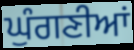
ਘੁੰਗਣੀਆਂ